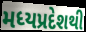
મધ્યપ્રદેશથી